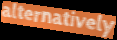
alternatively